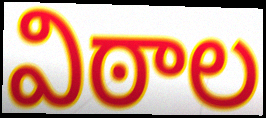
విఠాల